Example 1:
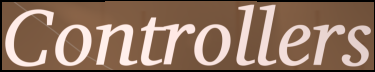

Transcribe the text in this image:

Controllers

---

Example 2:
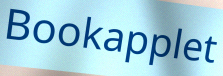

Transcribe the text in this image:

Bookapplet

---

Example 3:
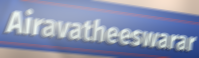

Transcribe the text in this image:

Airavatheeswarar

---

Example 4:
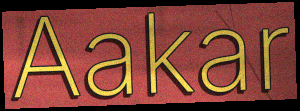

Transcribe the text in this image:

Aakar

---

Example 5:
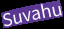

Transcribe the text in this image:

Suvahu